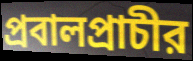
প্রবালপ্রাচীর